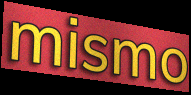
mismo